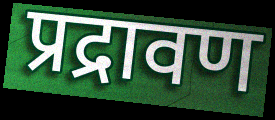
प्रद्रावण